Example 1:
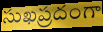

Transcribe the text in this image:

సుఖప్రదంగా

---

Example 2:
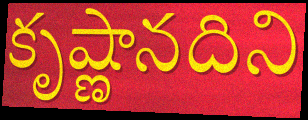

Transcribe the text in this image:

కృష్ణానదిని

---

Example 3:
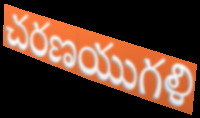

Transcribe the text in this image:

చరణయుగళి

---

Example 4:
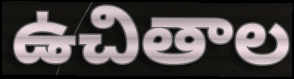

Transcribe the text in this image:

ఉచితాల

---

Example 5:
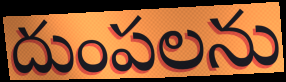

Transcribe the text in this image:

దుంపలను